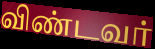
விண்டவர்